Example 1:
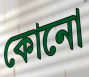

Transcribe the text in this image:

কোনো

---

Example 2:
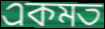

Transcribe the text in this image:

একমত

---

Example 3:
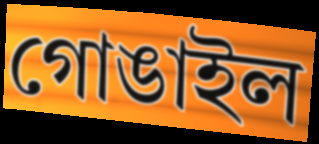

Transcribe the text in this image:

গোঙাইল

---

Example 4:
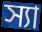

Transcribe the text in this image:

স্যা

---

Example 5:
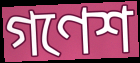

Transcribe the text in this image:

গণেশ